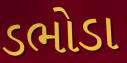
ડભોડા